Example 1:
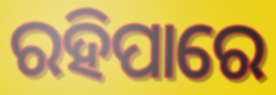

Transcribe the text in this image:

ରହିପାରେ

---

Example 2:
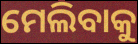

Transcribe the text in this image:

ମେଲିବାକୁ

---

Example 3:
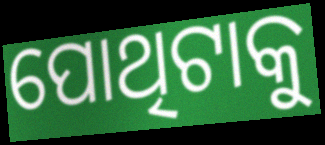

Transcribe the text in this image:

ପୋଥିଟାକୁ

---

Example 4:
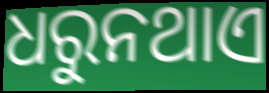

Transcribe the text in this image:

ଧରୁନଥାଏ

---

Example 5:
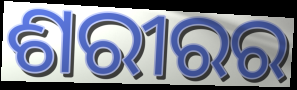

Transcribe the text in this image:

ଶରୀରର